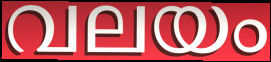
വലയം